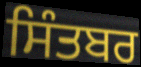
ਸਿੰਤਬਰ